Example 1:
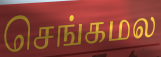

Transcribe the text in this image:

செங்கமல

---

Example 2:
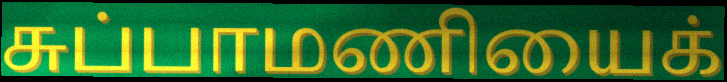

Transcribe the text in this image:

சுப்பாமணியைக்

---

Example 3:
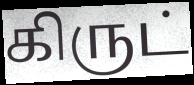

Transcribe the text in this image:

கிருட்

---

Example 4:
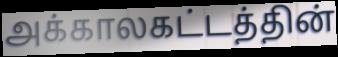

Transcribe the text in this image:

அக்காலகட்டத்தின்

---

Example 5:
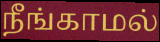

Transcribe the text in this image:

நீங்காமல்